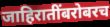
जाहिरातींबरोबरच